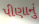
પીણાનું